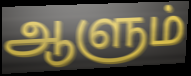
ஆளும்